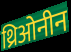
थ्रिओनीन